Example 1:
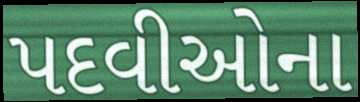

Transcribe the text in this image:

પદવીઓના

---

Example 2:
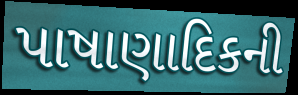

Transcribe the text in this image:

પાષાણાદિકની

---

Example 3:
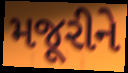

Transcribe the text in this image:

મજૂરીને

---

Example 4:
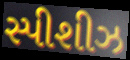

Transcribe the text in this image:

સ્પીશીઝ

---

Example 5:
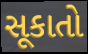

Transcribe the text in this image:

સૂકાતો